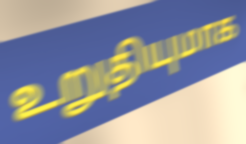
உறுதியுமாக